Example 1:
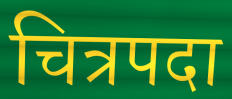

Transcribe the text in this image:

चित्रपदा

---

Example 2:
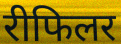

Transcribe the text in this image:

रीफिलर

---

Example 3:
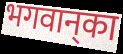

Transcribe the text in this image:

भगवान्‌का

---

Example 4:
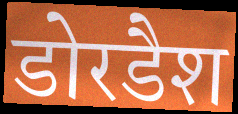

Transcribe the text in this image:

डोरडैश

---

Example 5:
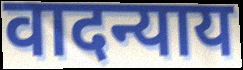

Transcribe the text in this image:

वादन्याय